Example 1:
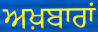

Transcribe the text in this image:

ਅਖ਼ਬਾਰਾਂ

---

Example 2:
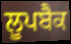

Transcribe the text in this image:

ਲੂਪਬੈਕ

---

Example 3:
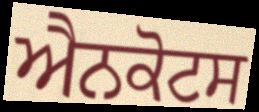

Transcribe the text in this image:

ਐਨਕੋਟਸ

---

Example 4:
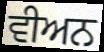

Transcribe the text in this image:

ਵੀਅਨ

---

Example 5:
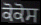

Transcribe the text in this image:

ਕੋਕੋਸ